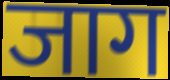
जाग